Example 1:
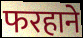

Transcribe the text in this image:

फरहाने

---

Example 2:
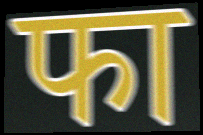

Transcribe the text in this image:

फा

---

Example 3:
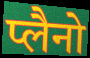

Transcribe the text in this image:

प्लैनो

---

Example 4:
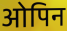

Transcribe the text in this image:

ओपिन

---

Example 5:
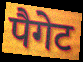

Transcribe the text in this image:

पैगेट